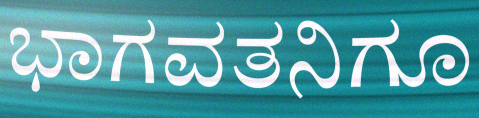
ಭಾಗವತನಿಗೂ